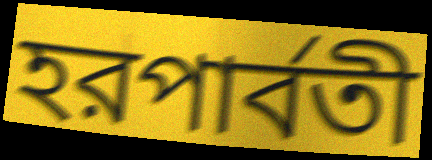
হরপার্বতী